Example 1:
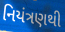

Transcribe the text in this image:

નિયંત્રણથી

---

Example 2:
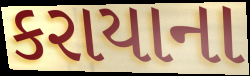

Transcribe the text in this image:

કરાયાના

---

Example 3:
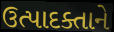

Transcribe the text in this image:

ઉત્પાદક્તાને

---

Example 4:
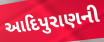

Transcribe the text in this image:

આદિપુરાણની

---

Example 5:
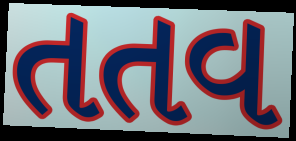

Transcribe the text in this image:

તતવ